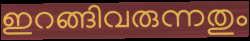
ഇറങ്ങിവരുന്നതും